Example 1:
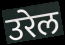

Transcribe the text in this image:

उरेल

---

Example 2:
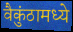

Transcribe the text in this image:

वैकुंठामध्ये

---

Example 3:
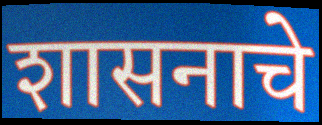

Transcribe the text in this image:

शासनाचे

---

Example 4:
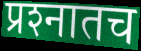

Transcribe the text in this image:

प्रश्नातच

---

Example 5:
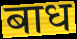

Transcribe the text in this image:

बाध